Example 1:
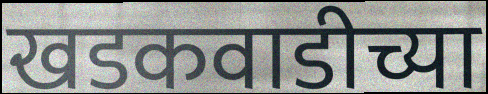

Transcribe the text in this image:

खडकवाडीच्या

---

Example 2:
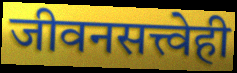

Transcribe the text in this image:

जीवनसत्त्वेही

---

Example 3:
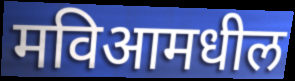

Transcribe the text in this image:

मविआमधील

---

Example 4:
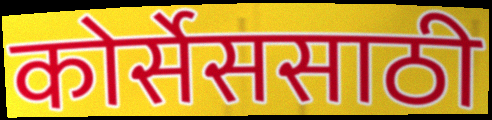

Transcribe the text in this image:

कोर्सेससाठी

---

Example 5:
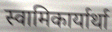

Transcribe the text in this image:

स्वामिकार्यार्था